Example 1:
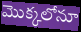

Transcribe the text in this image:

మొక్కలోనూ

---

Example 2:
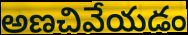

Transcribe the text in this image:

అణచివేయడం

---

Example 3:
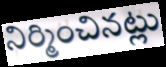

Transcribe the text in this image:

నిర్మించినట్లు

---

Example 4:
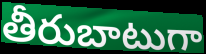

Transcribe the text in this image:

తీరుబాటుగా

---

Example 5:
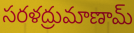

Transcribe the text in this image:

సరళద్రుమాణామ్